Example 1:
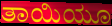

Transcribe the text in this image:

ತಾಯಿಯೂ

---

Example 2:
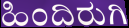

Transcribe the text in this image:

ಹಿಂದಿರುಗಿ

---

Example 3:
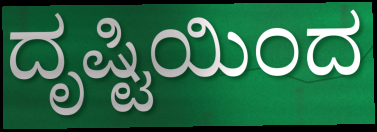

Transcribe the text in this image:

ದೃಷ್ಟಿಯಿಂದ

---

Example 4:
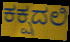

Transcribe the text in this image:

ಕಕ್ಷದಲಿ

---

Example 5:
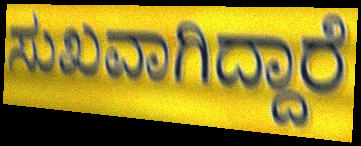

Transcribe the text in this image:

ಸುಖವಾಗಿದ್ದಾರೆ